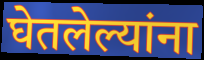
घेतलेल्यांना